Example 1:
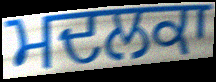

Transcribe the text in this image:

ਮਦਲਕਾ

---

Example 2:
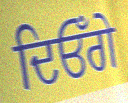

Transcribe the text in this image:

ਦਿਓਁਗੇ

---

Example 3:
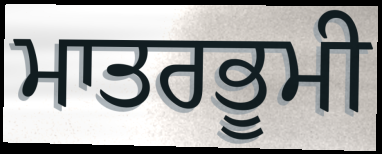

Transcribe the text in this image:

ਮਾਤਰਭੂਮੀ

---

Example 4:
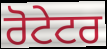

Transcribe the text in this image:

ਰੋਟੇਟਰ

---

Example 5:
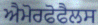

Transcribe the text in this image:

ਐਮੋਰਫੋਫੈਲਸ